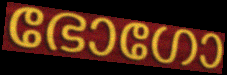
ഭോഗോ